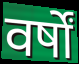
वर्षों